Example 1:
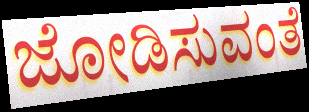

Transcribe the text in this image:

ಜೋಡಿಸುವಂತೆ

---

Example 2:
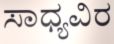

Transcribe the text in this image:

ಸಾಧ್ಯವಿರ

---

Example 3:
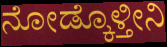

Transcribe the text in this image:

ನೋಡ್ಕೊಳ್ತೀನಿ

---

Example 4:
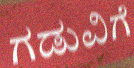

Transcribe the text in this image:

ಗಡುವಿಗೆ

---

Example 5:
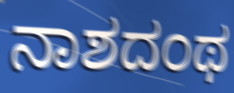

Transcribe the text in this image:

ನಾಶದಂಥ